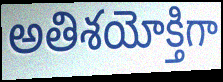
అతిశయోక్తిగా